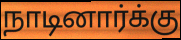
நாடினார்க்கு